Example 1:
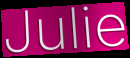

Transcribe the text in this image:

Julie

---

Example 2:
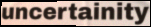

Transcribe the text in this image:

uncertainity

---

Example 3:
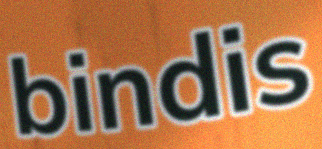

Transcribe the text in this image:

bindis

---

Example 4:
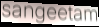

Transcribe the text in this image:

sangeetam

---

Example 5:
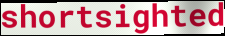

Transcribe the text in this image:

shortsighted